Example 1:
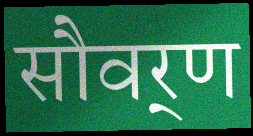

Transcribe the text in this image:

सौवर्ण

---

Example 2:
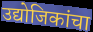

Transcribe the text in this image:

उद्योजिकांचा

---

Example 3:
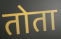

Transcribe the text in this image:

तोता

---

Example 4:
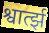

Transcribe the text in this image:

श्वार्त्झ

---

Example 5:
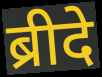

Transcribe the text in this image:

ब्रीदे